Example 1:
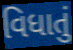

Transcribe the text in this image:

વિધાતું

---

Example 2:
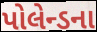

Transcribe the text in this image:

પોલેન્ડના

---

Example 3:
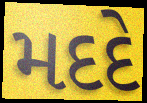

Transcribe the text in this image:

મદદે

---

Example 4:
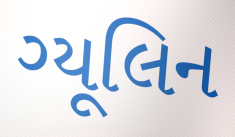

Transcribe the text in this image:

ગ્યૂલિન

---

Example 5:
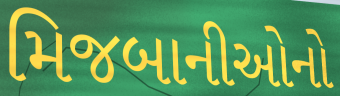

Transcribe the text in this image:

મિજબાનીઓનો